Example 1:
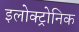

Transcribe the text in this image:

इलोक्ट्रोनिक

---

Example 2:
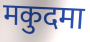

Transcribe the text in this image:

मकुदमा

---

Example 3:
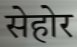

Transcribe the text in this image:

सेहोर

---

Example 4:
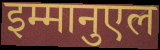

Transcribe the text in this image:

इम्मानुएल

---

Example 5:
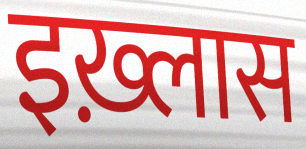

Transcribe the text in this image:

इख़्लास